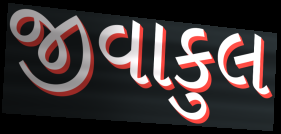
જીવાકુલ